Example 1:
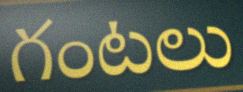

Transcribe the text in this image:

గంటలు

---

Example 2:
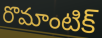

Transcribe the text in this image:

రొమాంటిక్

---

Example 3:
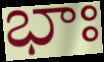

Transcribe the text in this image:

భాః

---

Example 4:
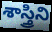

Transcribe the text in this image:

శాస్త్రిని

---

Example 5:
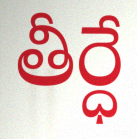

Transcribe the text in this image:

తీర్ధే